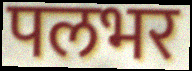
पलभर